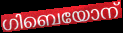
ഗിബെയോന്